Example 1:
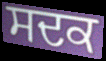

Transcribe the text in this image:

ਸਦਕ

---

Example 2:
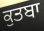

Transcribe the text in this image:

ਕੁਤਬਾ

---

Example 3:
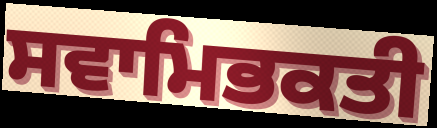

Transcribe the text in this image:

ਸਵਾਮਿਭਕਤੀ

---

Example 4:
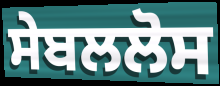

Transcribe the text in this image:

ਸੇਬਲਲੋਸ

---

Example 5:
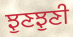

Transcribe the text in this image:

ਝੁਣਝੁਣੀ